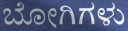
ಬೋಗಿಗಳು